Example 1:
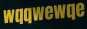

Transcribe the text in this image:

wqqwewqe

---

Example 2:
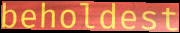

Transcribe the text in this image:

beholdest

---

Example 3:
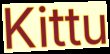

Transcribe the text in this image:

Kittu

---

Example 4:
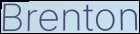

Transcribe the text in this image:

Brenton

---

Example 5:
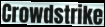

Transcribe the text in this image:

Crowdstrike